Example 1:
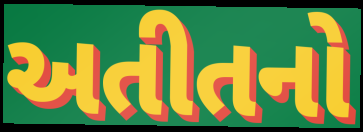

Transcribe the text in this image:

અતીતનો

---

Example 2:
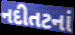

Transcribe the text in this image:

નદીતટનાં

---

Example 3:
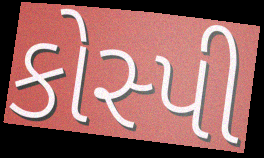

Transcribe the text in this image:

કોસ્પી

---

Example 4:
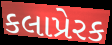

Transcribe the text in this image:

કલાપ્રેરક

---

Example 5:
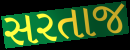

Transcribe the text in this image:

સરતાજ